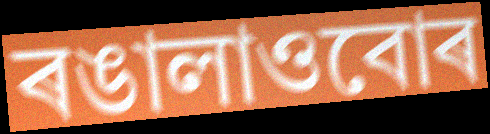
ৰঙালাওবোৰ